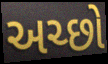
અચ્છો